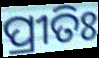
ପ୍ରୀତିଃ